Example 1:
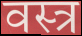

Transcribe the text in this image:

वस्त्र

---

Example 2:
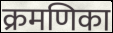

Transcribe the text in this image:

क्रमणिका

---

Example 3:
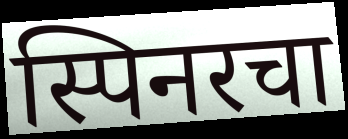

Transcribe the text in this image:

स्पिनरचा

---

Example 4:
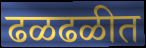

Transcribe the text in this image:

ढळढळीत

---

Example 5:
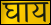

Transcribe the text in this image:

घाय